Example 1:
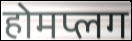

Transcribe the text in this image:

होमप्लग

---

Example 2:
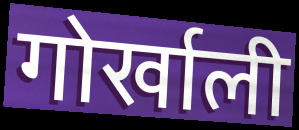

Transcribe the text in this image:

गोर्खाली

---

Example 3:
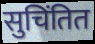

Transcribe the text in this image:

सुचिंतित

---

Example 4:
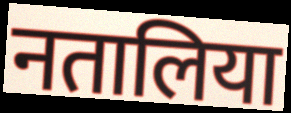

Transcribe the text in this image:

नतालिया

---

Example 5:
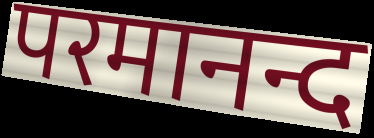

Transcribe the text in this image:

परमानन्द